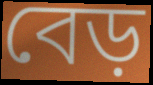
বেড়